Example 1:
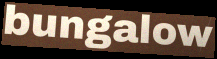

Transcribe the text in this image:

bungalow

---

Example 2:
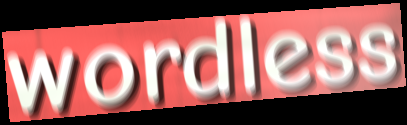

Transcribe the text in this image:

wordless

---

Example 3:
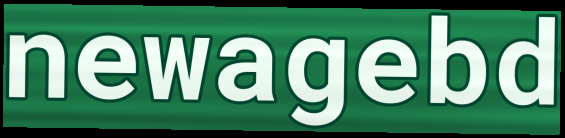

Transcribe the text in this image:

newagebd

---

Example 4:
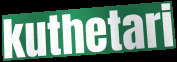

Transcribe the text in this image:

kuthetari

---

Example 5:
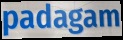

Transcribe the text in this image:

padagam